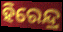
ହିରେନ୍ଦ୍ର